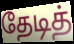
தேடித்